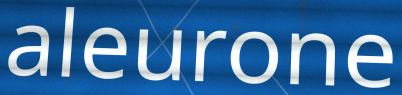
aleurone